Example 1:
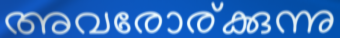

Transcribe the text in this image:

അവരോര്ക്കുന്നു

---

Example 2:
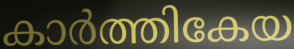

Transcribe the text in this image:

കാർത്തികേയ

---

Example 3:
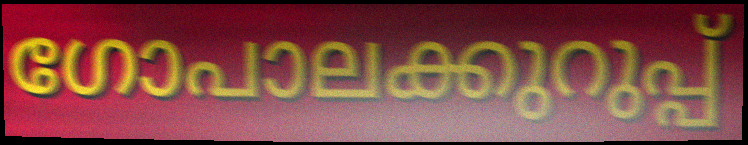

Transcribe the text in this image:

ഗോപാലക്കുറുപ്പ്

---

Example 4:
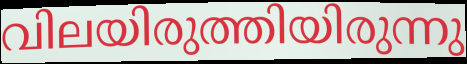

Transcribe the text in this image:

വിലയിരുത്തിയിരുന്നു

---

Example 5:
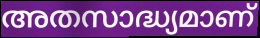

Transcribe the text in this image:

അതസാദ്ധ്യമാണ്